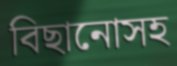
বিছানোসহ